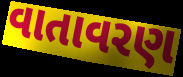
વાતાવરણ